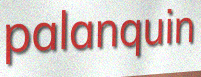
palanquin